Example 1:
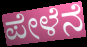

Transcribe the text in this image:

ಪೇಳೆನೆ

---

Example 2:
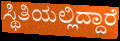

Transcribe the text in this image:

ಸ್ಥಿತಿಯಲ್ಲಿದ್ದಾರೆ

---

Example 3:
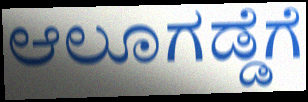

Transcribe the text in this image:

ಆಲೂಗಡ್ಡೆಗೆ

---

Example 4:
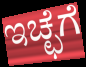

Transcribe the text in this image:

ಇಚ್ಛೆಗೆ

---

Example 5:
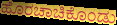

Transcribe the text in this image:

ಹೊರಚಾಚಿಕೊಂಡು